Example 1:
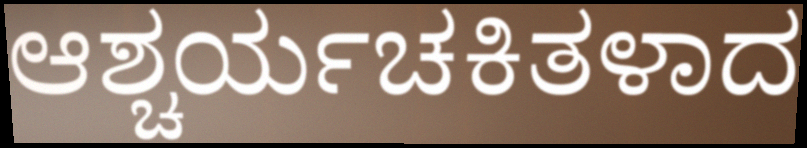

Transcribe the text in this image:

ಆಶ್ಚರ್ಯಚಕಿತಳಾದ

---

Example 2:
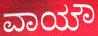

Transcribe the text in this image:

ವಾಯೌ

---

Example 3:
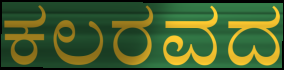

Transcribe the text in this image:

ಕಲರವದ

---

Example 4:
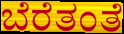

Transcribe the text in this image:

ಬೆರೆತಂತೆ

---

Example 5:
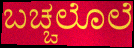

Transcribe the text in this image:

ಬಚ್ಚಲೊಲೆ